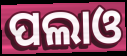
ପଲାଓ